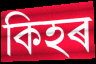
কিহৰ